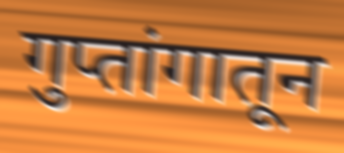
गुप्तांगातून